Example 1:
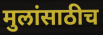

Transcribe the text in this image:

मुलांसाठीच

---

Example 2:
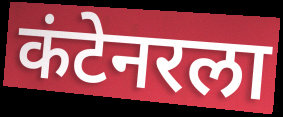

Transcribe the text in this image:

कंटेनरला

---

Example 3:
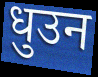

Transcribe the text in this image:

धुउन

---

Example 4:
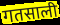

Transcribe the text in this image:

गतसाली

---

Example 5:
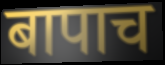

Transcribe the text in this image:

बापाच